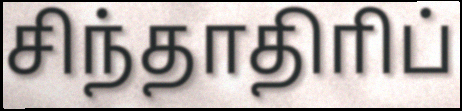
சிந்தாதிரிப்